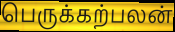
பெருக்கற்பலன்